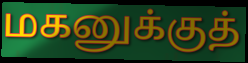
மகனுக்குத்